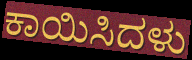
ಕಾಯಿಸಿದಳು